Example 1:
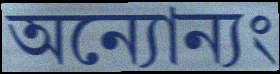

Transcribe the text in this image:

অন্যোন্যং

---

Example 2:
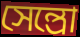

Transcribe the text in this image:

সেন্ত্রো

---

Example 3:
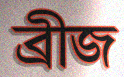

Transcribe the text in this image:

ব্রীজ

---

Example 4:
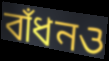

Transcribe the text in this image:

বাঁধনও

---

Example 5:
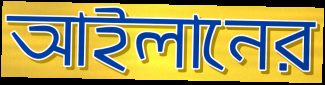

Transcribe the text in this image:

আইলানের